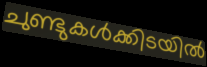
ചുണ്ടുകൾക്കിടയിൽ